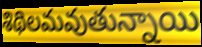
శిథిలమవుతున్నాయి